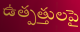
ఉత్పత్తులపై